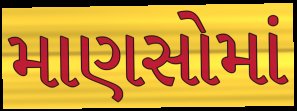
માણસોમાં